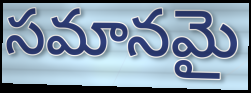
సమానమై